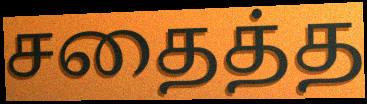
சதைத்த